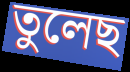
তুলেছ